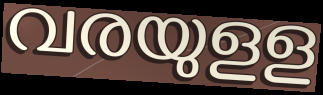
വരയുളള